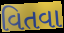
વિતવા